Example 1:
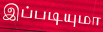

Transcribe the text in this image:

இப்படியுமா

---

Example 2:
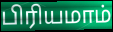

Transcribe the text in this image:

பிரியமாம்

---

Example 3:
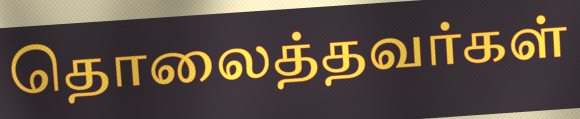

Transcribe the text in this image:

தொலைத்தவர்கள்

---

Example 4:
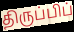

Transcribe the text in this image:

திருப்பிப்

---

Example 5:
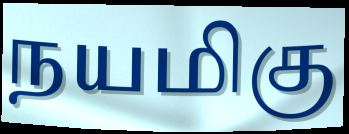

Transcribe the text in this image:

நயமிகு